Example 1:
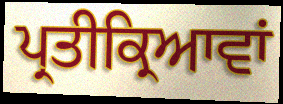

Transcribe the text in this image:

ਪ੍ਰਤੀਕ੍ਰਿਆਵਾਂ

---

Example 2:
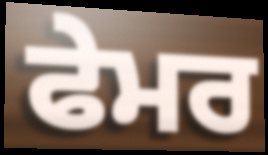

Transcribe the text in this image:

ਫੇਮਰ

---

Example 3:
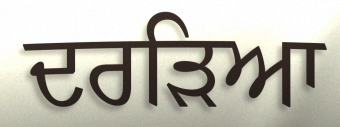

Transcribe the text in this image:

ਦਰੜਿਆ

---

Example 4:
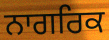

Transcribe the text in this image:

ਨਾਗਰਿਕ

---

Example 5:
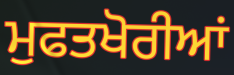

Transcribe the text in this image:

ਮੁਫਤਖੋਰੀਆਂ